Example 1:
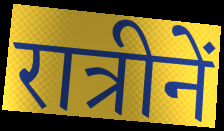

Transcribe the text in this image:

रात्रीनें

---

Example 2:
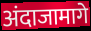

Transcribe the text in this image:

अंदाजामागे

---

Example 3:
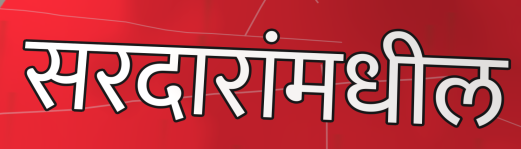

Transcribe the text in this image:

सरदारांमधील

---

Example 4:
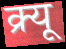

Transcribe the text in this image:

क्र्यू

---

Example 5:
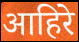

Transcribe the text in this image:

आहिरे